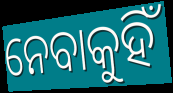
ନେବାକୁହିଁ